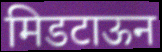
मिडटाऊन